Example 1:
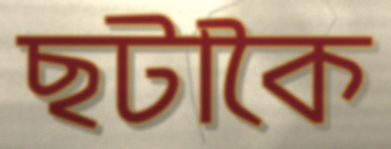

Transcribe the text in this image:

ছটাকৈ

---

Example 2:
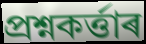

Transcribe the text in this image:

প্ৰশ্নকৰ্ত্তাৰ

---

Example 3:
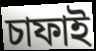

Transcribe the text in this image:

চাফাই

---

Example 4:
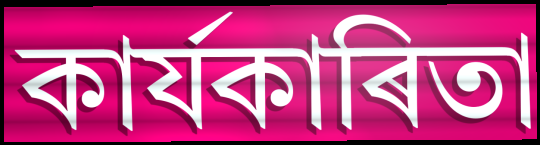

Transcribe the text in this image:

কাৰ্যকাৰিতা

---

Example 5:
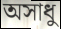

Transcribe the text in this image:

অসাধু